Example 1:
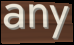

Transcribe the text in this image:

any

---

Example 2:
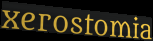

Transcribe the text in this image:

xerostomia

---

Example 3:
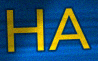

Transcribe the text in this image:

HA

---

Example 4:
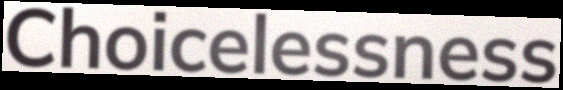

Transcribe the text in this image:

Choicelessness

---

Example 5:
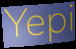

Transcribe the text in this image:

Yepi